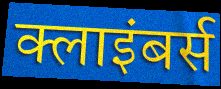
क्लाइंबर्स